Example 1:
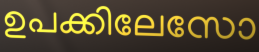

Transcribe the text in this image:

ഉപക്കിലേസോ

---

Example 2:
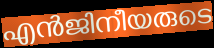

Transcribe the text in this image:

എൻജിനീയരുടെ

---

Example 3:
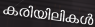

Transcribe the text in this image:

കരിയിലികൾ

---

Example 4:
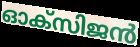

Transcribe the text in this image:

ഓക്സിജൻ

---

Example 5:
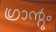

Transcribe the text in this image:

ഗ്രാന്റും